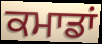
ਕਮਾਡਾਂ